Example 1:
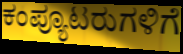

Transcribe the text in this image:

ಕಂಪ್ಯೂಟರುಗಳಿಗೆ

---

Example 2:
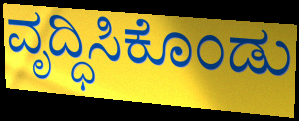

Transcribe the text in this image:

ವೃದ್ಧಿಸಿಕೊಂಡು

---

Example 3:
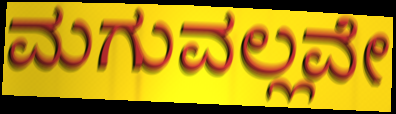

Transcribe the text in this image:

ಮಗುವಲ್ಲವೇ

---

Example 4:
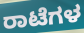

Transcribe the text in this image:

ರಾಟೆಗಳ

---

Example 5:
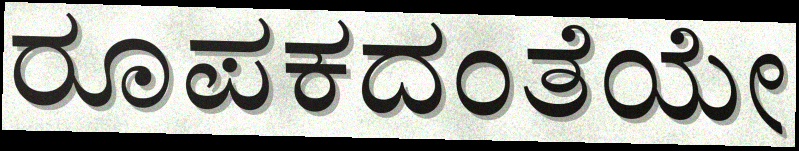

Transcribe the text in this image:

ರೂಪಕದಂತೆಯೇ